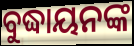
ବୁଦ୍ଧାୟନଙ୍କ